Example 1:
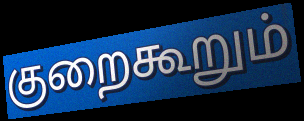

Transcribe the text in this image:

குறைகூறும்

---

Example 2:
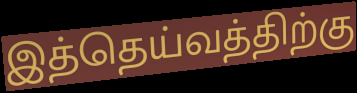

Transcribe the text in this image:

இத்தெய்வத்திற்கு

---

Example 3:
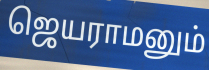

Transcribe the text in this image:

ஜெயராமனும்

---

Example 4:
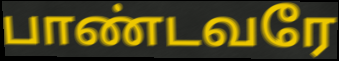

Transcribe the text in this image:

பாண்டவரே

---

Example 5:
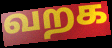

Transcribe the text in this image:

வறக